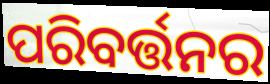
ପରିବର୍ତ୍ତନର